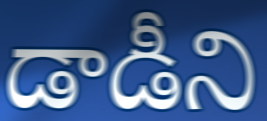
డాడీని